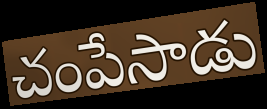
చంపేసాడు